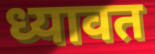
ध्यावत